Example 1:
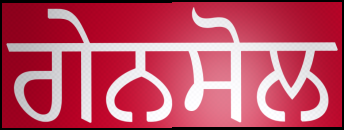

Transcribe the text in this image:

ਗੇਨਸੋਲ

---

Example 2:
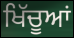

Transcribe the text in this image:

ਖਿੱਚੂਆਂ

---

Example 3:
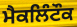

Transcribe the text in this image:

ਮੈਕਲਿੰਟੌਕ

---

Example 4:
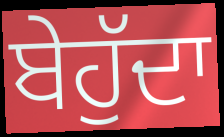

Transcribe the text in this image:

ਬੇਹੁੱਦਾ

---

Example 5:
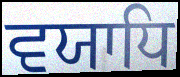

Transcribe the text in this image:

ਵਯਾਧਿ